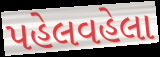
પહેલવહેલા